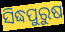
ସିଦ୍ଧପୁରୁଷ